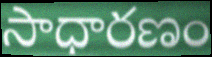
సాధారణం